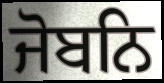
ਜੋਬਨਿ